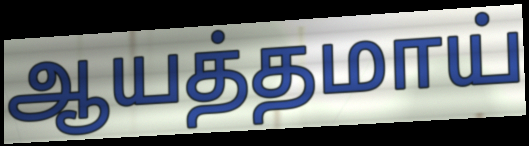
ஆயத்தமாய்